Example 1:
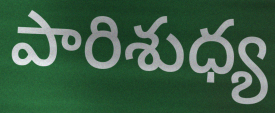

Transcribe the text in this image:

పారిశుధ్య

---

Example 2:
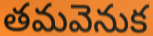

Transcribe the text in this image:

తమవెనుక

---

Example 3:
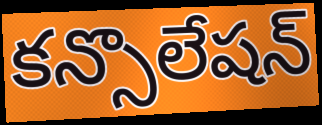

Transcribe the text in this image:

కన్సొలేషన్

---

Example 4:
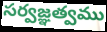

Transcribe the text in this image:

సర్వజ్ఞత్వము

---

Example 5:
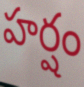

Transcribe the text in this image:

హర్షం